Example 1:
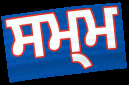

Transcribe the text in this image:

ਸਮ੍ਮ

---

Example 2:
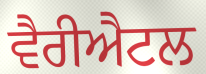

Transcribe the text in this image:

ਵੈਰੀਐਟਲ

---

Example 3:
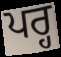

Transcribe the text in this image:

ਪਰ੍ਹ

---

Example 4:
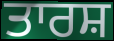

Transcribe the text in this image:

ਤਾਰਸ਼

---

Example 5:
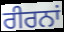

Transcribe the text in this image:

ਰੀਰਨਾਂ